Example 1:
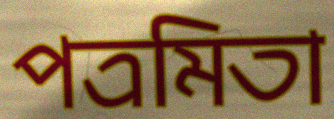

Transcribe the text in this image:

পত্রমিতা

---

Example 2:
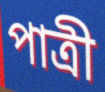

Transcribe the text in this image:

পাত্রী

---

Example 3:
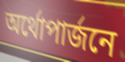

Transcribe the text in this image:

অর্থোপার্জনে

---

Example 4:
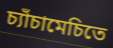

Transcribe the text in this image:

চ্যাঁচামেচিতে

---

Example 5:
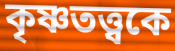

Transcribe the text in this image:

কৃষ্ণতত্ত্বকে